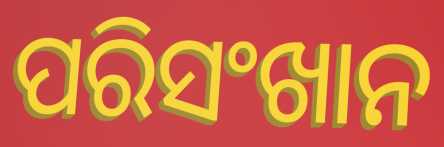
ପରିସଂଖାନ